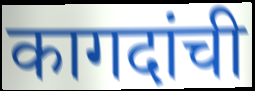
कागदांची